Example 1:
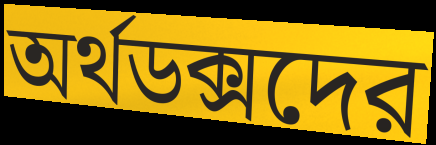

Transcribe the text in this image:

অর্থডক্সদের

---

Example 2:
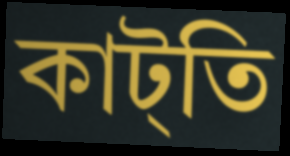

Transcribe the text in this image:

কাট্তি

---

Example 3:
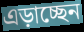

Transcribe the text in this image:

এড়াচ্ছেন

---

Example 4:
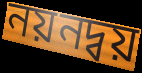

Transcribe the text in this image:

নয়নদ্বয়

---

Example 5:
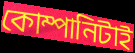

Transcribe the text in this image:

কোম্পানিটাই